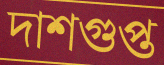
দাশগুপ্ত